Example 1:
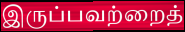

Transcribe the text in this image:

இருப்பவற்றைத்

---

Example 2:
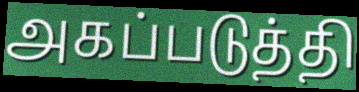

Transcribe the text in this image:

அகப்படுத்தி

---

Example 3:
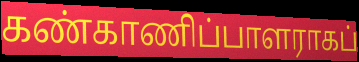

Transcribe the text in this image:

கண்காணிப்பாளராகப்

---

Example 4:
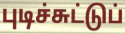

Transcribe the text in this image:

புடிச்சுட்டுப்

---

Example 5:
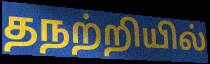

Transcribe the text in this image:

தநற்றியில்